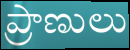
ప్రాణులు